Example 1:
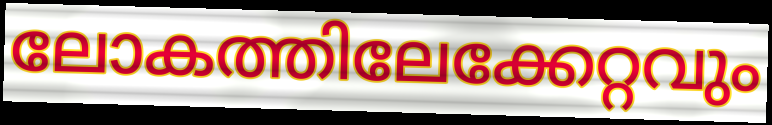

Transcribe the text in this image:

ലോകത്തിലേക്കേറ്റവും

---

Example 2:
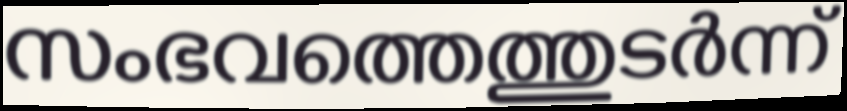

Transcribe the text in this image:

സംഭവത്തെത്തുടർന്ന്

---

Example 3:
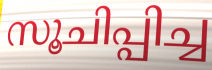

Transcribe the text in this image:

സൂചിപ്പിച്ച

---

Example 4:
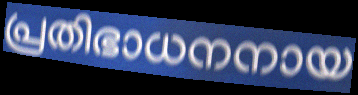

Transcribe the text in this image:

പ്രതിഭാധനനായ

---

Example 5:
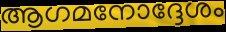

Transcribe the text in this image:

ആഗമനോദ്ദേശം